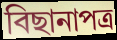
বিছানাপত্র